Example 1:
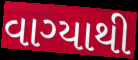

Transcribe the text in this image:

વાગ્યાથી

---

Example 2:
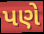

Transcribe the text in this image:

પણે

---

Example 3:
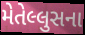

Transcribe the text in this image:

મેતેલ્લુસના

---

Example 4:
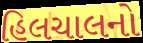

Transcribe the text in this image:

હિલચાલનો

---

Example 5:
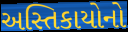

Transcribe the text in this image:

અસ્તિકાયોનો